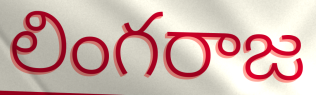
లింగరాజ